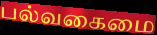
பல்வகைமை